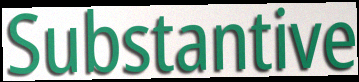
Substantive